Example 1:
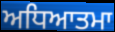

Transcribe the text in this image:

ਅਧਿਆਤਮਾ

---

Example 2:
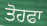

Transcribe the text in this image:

ਤੋਹਫਾ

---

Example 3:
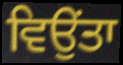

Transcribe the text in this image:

ਵਿਉਂਤਾ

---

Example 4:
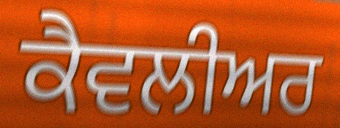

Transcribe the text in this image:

ਕੈਵਲੀਅਰ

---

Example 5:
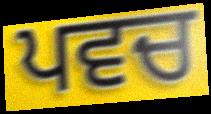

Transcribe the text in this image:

ਪਵਚ